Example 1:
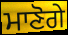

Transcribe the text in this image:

ਮਾਣੋਗੇ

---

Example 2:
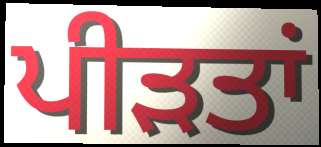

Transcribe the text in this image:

ਪੀਡ਼ਤਾਂ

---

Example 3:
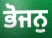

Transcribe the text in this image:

ਭੋਜਨੁ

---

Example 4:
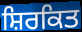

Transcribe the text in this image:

ਸ਼ਿਰਕਿਤ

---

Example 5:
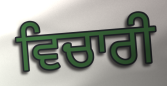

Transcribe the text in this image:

ਵਿਚਾਰੀ